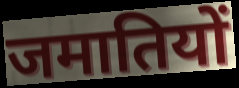
जमातियों